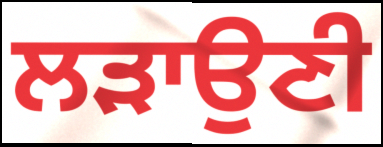
ਲੜਾਉਣੀ